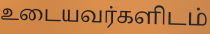
உடையவர்களிடம்